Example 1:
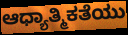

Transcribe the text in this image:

ಆಧ್ಯಾತ್ಮಿಕತೆಯು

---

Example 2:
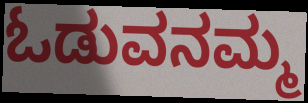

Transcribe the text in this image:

ಓಡುವನಮ್ಮ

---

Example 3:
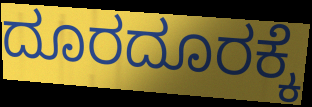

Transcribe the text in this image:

ದೂರದೂರಕ್ಕೆ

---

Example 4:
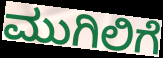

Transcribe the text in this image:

ಮುಗಿಲಿಗೆ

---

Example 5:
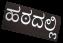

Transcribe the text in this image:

ಹಠದಲ್ಲಿ